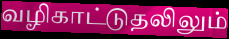
வழிகாட்டுதலிலும்